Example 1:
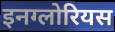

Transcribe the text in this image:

इनग्लोरियस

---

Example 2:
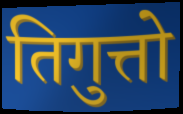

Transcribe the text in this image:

तिगुत्तो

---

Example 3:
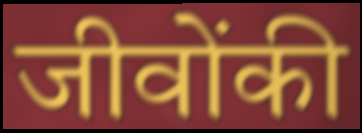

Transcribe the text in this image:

जीवोंकी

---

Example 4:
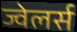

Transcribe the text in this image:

ज्वेलर्स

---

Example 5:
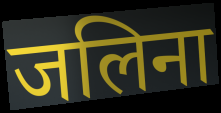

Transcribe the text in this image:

जलिना